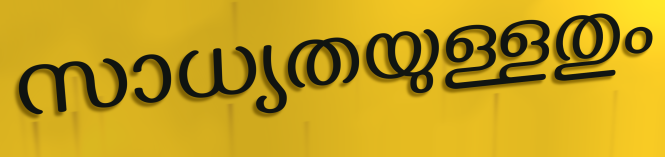
സാധ്യതയുള്ളതും